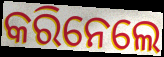
କରିନେଲେ